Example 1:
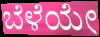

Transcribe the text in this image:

ಬೆಳೆಯೇ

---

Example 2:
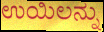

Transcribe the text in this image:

ಉಯಿಲನ್ನು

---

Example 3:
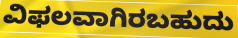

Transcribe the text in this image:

ವಿಫಲವಾಗಿರಬಹುದು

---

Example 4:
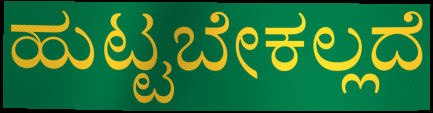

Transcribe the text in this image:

ಹುಟ್ಟಬೇಕಲ್ಲದೆ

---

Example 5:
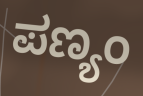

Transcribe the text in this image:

ಪಣ್ಯಂ